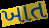
ખાત